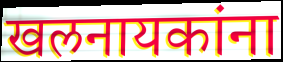
खलनायकांना